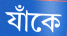
যাঁকে